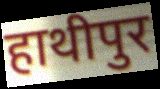
हाथीपुर